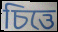
চিত্তে